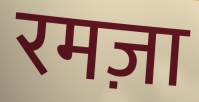
रमज़ा